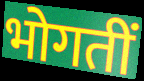
भोगतीं